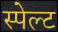
स्पेल्ट